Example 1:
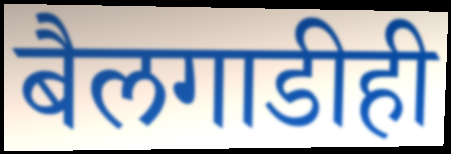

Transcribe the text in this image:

बैलगाडीही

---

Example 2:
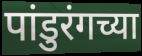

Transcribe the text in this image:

पांडुरंगच्या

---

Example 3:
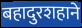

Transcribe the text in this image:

बहादुरशहाने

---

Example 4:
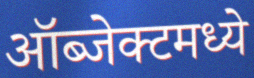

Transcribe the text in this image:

ऑब्जेक्टमध्ये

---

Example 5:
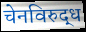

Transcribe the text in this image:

चेनविरुद्ध